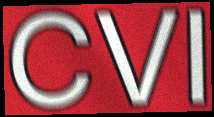
CVI